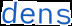
dens